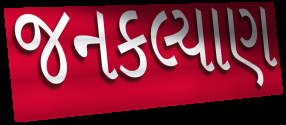
જનકલ્યાણ